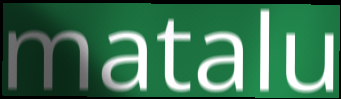
matalu